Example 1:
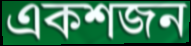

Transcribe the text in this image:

একশজন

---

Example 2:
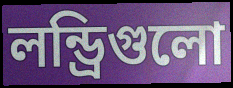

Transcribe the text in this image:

লন্ড্রিগুলো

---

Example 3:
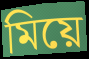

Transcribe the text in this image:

মিয়ে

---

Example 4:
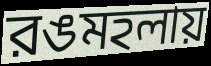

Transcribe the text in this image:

রঙমহলায়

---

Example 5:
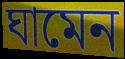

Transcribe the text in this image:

ঘামেন